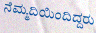
ನೆಮ್ಮದಿಯಿಂದಿದ್ದರು